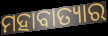
ମହାବାତ୍ୟାର